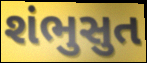
શંભુસુત